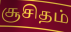
சூசிதம்